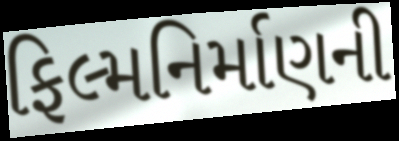
ફિલ્મનિર્માણની